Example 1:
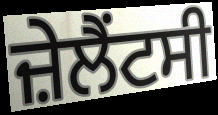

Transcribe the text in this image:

ਜ਼ੇਲੈਂਟਸੀ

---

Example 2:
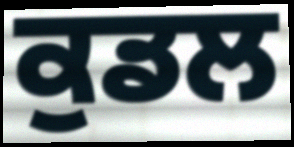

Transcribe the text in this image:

ਕੁਡਲ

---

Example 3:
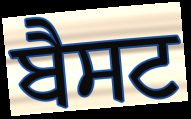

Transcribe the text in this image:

ਬੈਸਟ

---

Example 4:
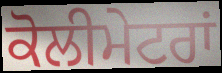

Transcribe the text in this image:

ਕੋਲੀਮੇਟਰਾਂ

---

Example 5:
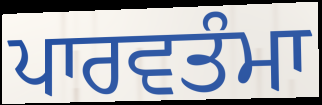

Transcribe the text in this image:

ਪਾਰਵਤੰਮਾ